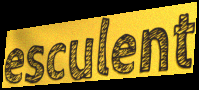
esculent